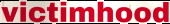
victimhood